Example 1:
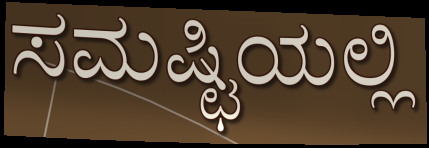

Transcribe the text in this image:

ಸಮಷ್ಟಿಯಲ್ಲಿ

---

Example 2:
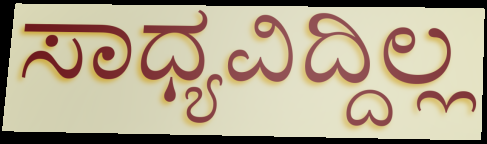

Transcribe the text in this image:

ಸಾಧ್ಯವಿದ್ದಿಲ್ಲ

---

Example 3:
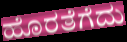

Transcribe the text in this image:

ಹೊರತೆಗೆದು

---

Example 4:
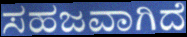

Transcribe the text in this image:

ಸಹಜವಾಗಿದೆ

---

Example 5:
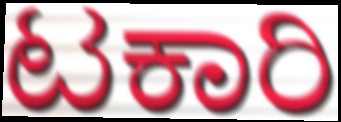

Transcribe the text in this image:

ಟಕಾರಿ